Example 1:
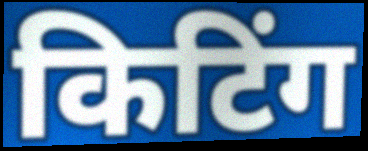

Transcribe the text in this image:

किटिंग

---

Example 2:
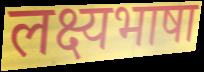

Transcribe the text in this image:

लक्ष्यभाषा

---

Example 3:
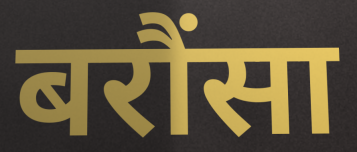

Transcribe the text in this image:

बरौंसा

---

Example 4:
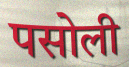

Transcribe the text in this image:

पसोली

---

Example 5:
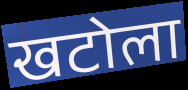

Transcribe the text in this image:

खटोला